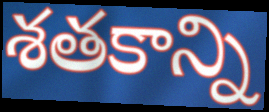
శతకాన్ని